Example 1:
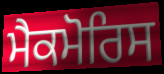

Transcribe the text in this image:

ਮੈਕਮੋਰਿਸ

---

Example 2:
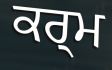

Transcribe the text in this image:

ਕਰ੍ਮ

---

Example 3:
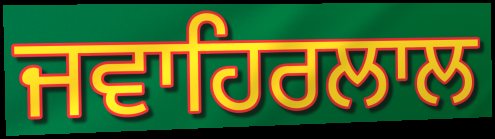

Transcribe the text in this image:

ਜਵਾਹਿਰਲਾਲ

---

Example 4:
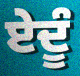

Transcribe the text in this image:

ਏਦੂੰ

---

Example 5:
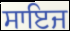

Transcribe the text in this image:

ਸਾਇਜ